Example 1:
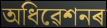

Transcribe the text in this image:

অধিৱেশনৰ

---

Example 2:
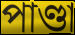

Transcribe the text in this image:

পাণ্ডা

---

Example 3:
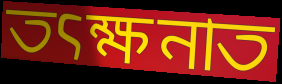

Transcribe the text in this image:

তৎক্ষনাত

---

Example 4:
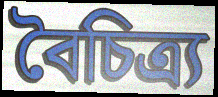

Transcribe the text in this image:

বৈচিত্ৰ্য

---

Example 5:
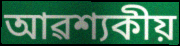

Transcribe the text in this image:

আৱশ্যকীয়